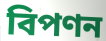
বিপণন